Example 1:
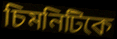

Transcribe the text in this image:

চিমনিটিকে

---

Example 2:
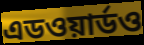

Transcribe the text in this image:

এডওয়ার্ডও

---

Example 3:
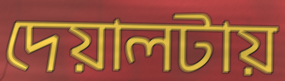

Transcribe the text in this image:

দেয়ালটায়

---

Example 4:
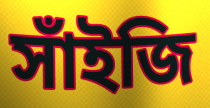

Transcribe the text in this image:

সাঁইজি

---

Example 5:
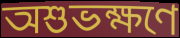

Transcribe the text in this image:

অশুভক্ষণে